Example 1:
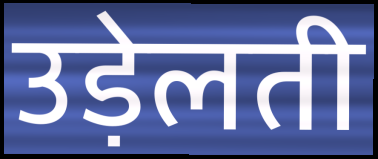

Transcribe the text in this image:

उड़ेलती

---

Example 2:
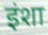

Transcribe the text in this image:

इंशा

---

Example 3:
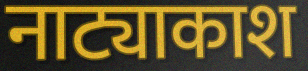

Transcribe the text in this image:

नाट्याकाश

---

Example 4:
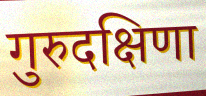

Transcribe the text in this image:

गुरुदक्षिणा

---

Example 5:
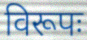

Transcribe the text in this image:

विरूपः